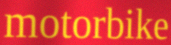
motorbike